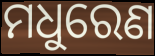
ମଧୁରେଣ